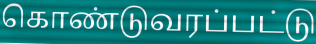
கொண்டுவரப்பட்டு